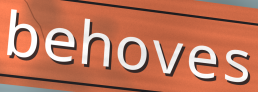
behoves